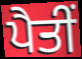
ਪੈਤੀਂ